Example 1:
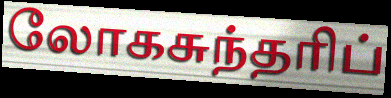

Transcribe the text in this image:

லோகசுந்தரிப்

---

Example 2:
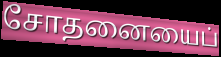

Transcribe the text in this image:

சோதனையைப்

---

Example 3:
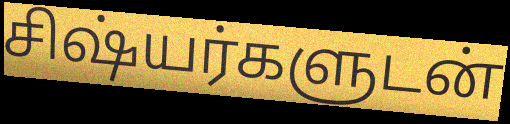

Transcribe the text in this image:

சிஷ்யர்களுடன்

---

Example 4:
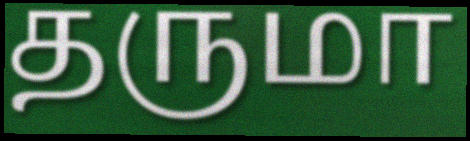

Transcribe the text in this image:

தருமா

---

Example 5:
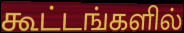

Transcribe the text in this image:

கூட்டங்களில்